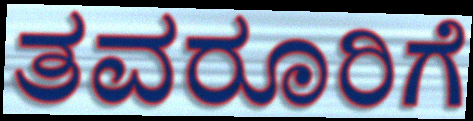
ತವರೂರಿಗೆ